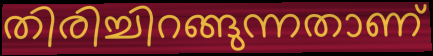
തിരിച്ചിറങ്ങുന്നതാണ്